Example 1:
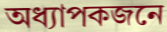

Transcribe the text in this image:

অধ্যাপকজনে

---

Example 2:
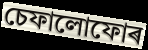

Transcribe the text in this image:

চেফালোফোৰ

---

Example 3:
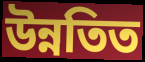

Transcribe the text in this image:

উন্নতিত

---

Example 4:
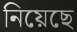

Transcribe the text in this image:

নিয়েছে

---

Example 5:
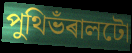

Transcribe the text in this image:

পুথিভঁৰালটো